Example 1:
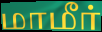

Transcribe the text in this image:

மாமீர்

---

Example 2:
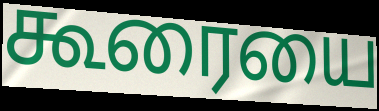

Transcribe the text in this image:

கூரையை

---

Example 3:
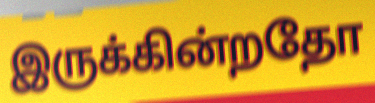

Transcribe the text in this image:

இருக்கின்றதோ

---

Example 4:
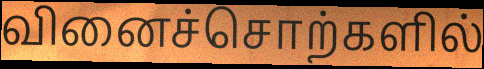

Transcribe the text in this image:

வினைச்சொற்களில்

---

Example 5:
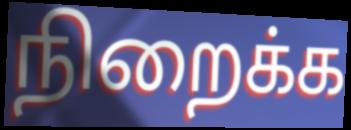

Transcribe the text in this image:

நிறைக்க